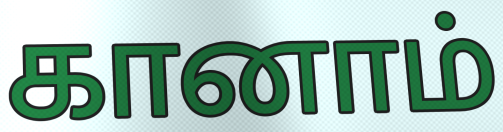
கானாம்